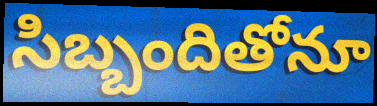
సిబ్బందితోనూ